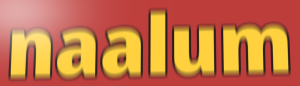
naalum